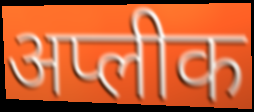
अप्लीक